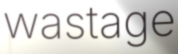
wastage